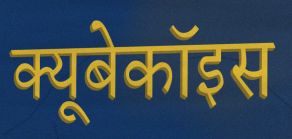
क्यूबेकॉइस